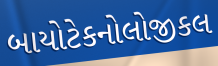
બાયોટેકનોલોજીકલ